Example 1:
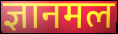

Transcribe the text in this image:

ज्ञानमल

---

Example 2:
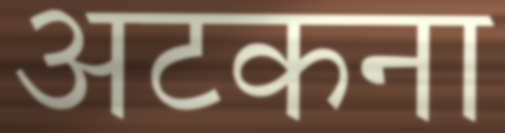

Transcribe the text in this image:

अटकना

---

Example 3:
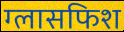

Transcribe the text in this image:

ग्लासफिश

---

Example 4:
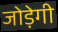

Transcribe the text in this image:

जोड़ेगी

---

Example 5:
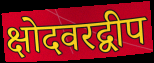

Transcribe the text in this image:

क्षोदवरद्वीप